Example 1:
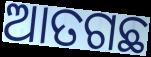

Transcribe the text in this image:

ଆତଗଛ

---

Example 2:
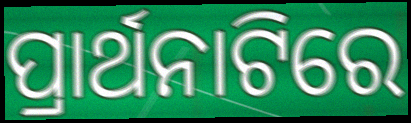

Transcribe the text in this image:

ପ୍ରାର୍ଥନାଟିରେ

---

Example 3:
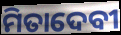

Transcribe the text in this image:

ମିତାଦେବୀ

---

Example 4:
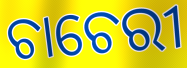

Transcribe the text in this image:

ଚାଚେରୀ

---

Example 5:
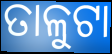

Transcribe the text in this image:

ତାଳୁଟା